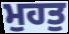
ਮੁਹਤੁ